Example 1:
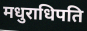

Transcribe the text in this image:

मधुराधिपति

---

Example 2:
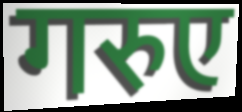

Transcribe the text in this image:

गरुए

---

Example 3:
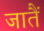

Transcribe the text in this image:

जातैं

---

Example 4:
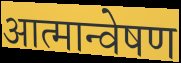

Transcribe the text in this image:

आत्मान्वेषण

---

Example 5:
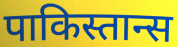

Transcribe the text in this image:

पाकिस्तान्स